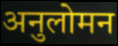
अनुलोमन